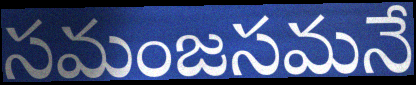
సమంజసమనే